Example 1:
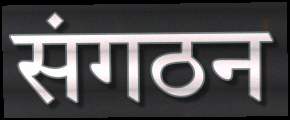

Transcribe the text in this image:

संगठन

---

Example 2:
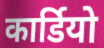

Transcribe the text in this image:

कार्डियो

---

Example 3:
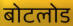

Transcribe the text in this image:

बोटलोड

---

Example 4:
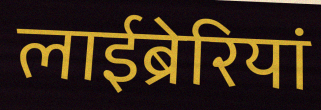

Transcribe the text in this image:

लाईब्रेरियां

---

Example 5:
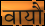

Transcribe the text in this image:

वायौ